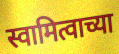
स्वामित्वाच्या